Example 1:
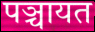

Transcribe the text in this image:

पञ्चायत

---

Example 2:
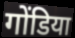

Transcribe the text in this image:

गोंडिया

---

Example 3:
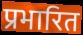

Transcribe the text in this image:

प्रभारित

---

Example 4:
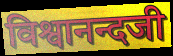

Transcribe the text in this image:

विश्वानन्दजी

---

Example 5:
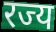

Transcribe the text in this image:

रज्य